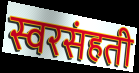
स्वरसंहती